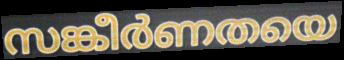
സങ്കീർണതയെ